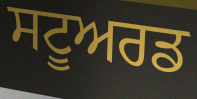
ਸਟੂਅਰਡ